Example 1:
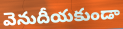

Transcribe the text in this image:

వెనుదీయకుండా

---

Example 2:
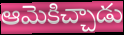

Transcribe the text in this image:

ఆమెకిచ్చాడు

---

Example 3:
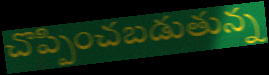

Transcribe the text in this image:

చొప్పించబడుతున్న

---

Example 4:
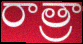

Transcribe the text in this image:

రాత్రా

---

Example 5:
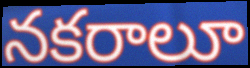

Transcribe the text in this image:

నకరాలూ